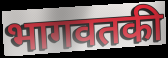
भागवतकी